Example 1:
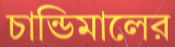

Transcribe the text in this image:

চান্ডিমালের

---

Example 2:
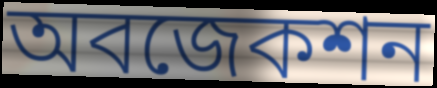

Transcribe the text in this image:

অবজেকশন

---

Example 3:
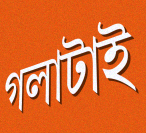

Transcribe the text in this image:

গলাটাই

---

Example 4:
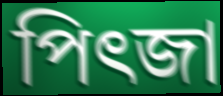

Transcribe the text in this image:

পিৎজা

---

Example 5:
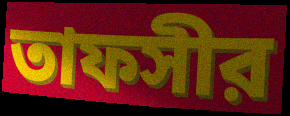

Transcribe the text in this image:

তাফসীর